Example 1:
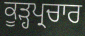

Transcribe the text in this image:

ਕੂੜ੍ਹਪ੍ਰਚਾਰ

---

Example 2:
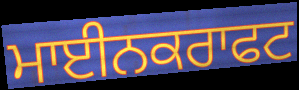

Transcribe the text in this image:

ਮਾਈਨਕਰਾਫਟ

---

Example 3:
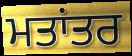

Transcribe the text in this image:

ਮਤਾਂਤਰ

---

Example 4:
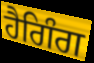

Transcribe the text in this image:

ਹੈਗਿੰਗ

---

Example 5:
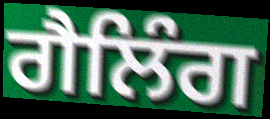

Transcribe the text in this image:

ਗੈਲਿੰਗ